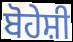
ਬੋਹੇਸ਼ੀ